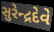
સુરેન્દ્રદેવે